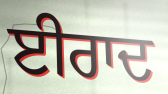
ਈਰਾਦ